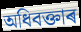
অধিবক্তাৰ